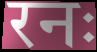
रनः